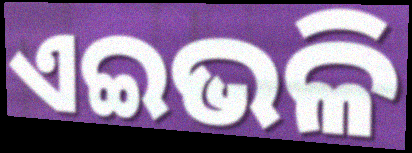
ଏଇଭଳି